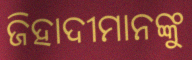
ଜିହାଦୀମାନଙ୍କୁ